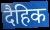
दैहिक